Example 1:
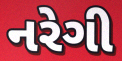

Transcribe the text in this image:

નરેગી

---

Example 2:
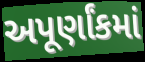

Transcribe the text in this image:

અપૂર્ણાંકમાં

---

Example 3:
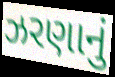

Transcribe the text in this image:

ઝરણાનું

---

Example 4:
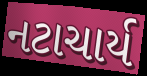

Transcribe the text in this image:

નટાચાર્ય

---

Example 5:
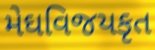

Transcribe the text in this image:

મેઘવિજયકૃત